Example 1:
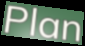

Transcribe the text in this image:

Plan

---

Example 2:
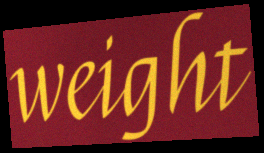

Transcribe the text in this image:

weight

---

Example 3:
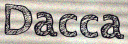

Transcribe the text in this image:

Dacca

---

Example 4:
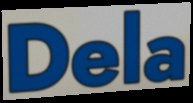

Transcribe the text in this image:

Dela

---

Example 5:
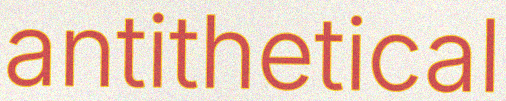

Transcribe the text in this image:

antithetical